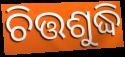
ଚିତ୍ତଶୁଦ୍ଧି